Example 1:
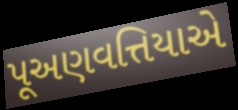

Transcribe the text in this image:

પૂઅણવત્તિયાએ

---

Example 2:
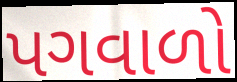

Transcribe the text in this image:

પગવાળો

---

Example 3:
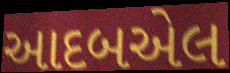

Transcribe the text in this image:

આદબએલ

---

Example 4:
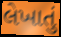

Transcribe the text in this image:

લેખાતું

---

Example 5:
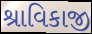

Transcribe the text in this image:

શ્રાવિકાજી